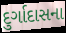
દુર્ગાદાસના